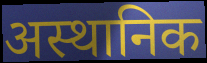
अस्थानिक